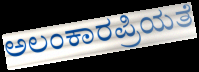
ಅಲಂಕಾರಪ್ರಿಯತೆ